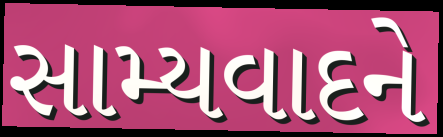
સામ્યવાદને